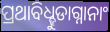
ପ୍ରଥାବିଧ୍ହୁଡାଗ୍ନାନାଂ